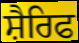
ਸ਼ੈਰਿਫ